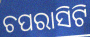
ଚପରାସିଟି